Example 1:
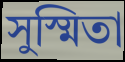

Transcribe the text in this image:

সুস্মিতা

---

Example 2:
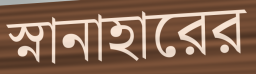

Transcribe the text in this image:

স্নানাহারের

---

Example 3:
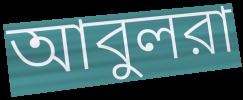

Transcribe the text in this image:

আবুলরা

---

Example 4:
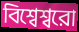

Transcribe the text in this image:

বিশ্বেশ্বরো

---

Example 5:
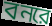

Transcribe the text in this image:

বনরে